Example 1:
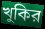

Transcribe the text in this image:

খুকির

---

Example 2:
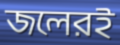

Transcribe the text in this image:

জলেরই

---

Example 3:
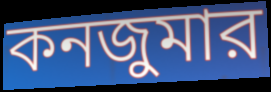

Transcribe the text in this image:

কনজুমার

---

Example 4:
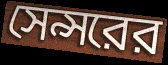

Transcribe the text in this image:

সেন্সরের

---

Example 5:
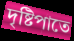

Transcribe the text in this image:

দৃষ্টিপাতে